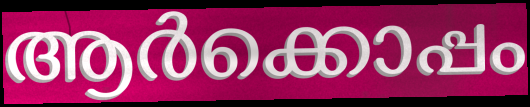
ആർക്കൊപ്പം